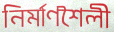
নিৰ্মাণশৈলী